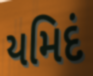
યમિદં